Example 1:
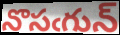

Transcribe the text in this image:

నొసఁగున్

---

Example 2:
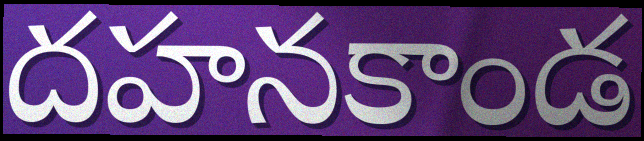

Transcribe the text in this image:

దహనకాండ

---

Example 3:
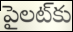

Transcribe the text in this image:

పైలట్‌కు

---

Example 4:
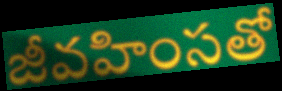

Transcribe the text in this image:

జీవహింసతో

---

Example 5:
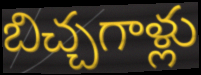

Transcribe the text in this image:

బిచ్చగాళ్లు